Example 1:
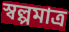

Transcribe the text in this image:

স্বল্পমাত্র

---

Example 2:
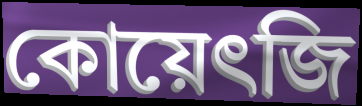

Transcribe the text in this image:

কোয়েৎজি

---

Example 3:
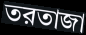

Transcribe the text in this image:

তরতাজা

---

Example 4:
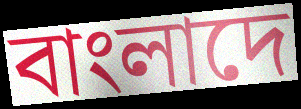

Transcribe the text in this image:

বাংলাদে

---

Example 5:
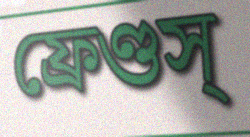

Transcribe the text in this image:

ফ্রেণ্ডস্